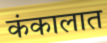
कंकालात